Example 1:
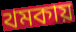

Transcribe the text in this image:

থমকায়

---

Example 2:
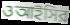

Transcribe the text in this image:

ওআইসির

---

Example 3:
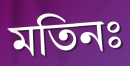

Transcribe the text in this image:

মতিনঃ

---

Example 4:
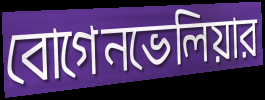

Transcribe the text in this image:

বোগেনভেলিয়ার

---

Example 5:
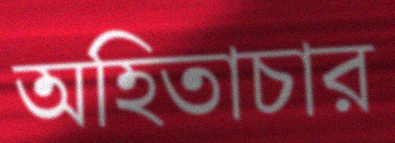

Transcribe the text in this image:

অহিতাচার